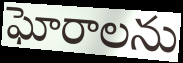
ఘోరాలను